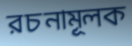
রচনামূলক